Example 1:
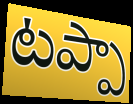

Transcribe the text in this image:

టప్పా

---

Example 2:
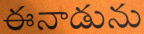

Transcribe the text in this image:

ఈనాడును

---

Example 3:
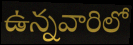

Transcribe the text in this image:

ఉన్నవారిలో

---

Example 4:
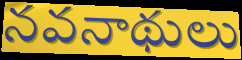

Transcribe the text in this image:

నవనాథులు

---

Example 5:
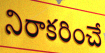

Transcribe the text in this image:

నిరాకరించే